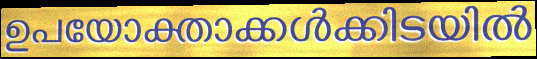
ഉപയോക്താക്കൾക്കിടയിൽ